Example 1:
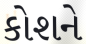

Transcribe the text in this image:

કોશને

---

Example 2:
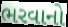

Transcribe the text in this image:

ભરવાનો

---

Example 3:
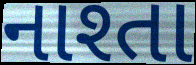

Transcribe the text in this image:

નાશ્તા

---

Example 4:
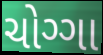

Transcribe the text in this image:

ચોગ્ગા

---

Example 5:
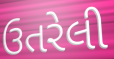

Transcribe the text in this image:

ઉતરેલી